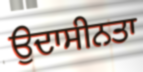
ਉਦਾਸੀਨਤਾ